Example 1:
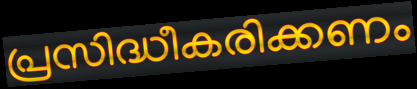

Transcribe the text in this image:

പ്രസിദ്ധീകരിക്കണം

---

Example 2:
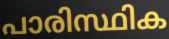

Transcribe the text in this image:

പാരിസ്ഥിക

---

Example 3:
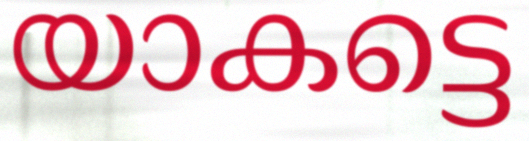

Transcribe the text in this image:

യാകട്ടെ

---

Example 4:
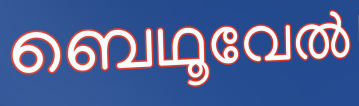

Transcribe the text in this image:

ബെഥൂവേൽ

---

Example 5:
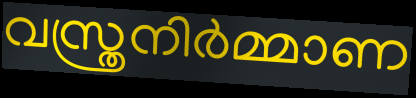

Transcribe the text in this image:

വസ്ത്രനിർമ്മാണ